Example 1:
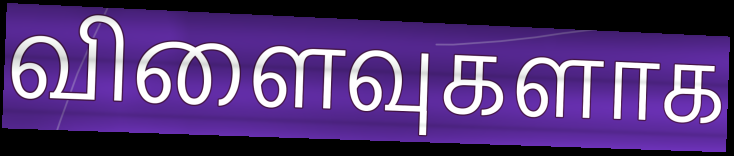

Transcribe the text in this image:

விளைவுகளாக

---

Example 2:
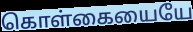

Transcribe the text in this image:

கொள்கையையே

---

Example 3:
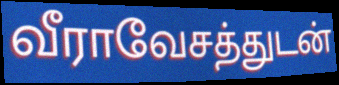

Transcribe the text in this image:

வீராவேசத்துடன்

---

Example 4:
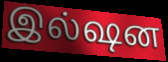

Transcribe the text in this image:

இல்ஷன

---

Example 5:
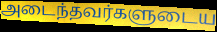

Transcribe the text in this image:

அடைந்தவர்களுடைய